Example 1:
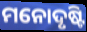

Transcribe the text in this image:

ମନୋଦୃଷ୍ଟି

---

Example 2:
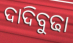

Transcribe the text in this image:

ଦାଦିବୁଢା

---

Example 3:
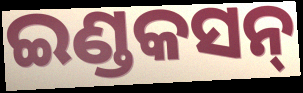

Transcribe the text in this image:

ଇଣ୍ଡକସନ୍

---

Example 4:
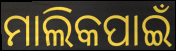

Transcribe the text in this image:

ମାଲିକପାଇଁ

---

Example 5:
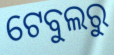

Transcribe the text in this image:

ଟେବୁଲରୁ